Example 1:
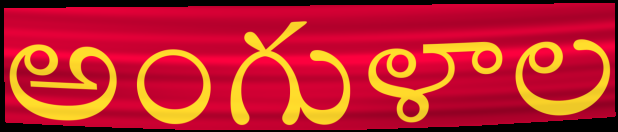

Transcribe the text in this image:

అంగుళాల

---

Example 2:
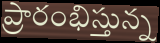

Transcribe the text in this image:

ప్రారంభిస్తున్న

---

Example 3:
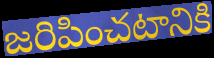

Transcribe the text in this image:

జరిపించటానికి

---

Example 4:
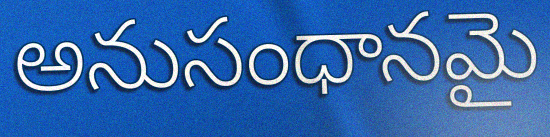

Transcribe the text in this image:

అనుసంధానమై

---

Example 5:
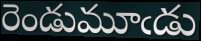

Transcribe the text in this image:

రెండుమూఁడు